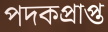
পদকপ্রাপ্ত